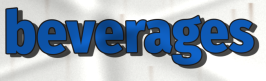
beverages